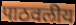
पाठवलीय